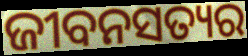
ଜୀବନସତ୍ୟର